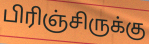
பிரிஞ்சிருக்கு